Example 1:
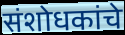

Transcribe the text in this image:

संशोधकांचे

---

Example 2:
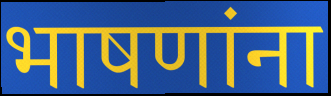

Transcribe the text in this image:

भाषणांना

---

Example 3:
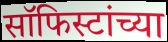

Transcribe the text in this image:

सॉफिस्टांच्या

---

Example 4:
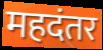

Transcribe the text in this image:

महदंतर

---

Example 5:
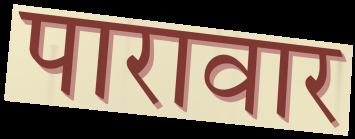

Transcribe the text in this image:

पारावार